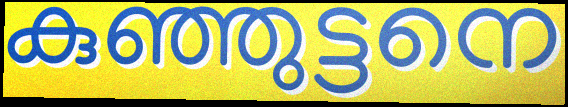
കുഞ്ഞുട്ടനെ